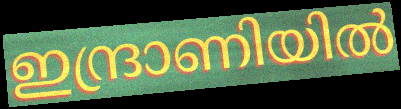
ഇന്ദ്രാണിയിൽ